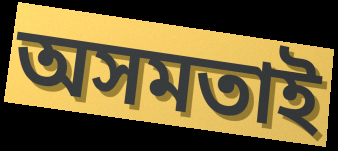
অসমতাই